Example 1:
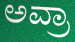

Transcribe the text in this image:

ಅವ್ರಾ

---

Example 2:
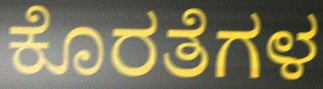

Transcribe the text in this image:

ಕೊರತೆಗಳ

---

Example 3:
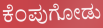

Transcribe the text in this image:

ಕೆಂಪುಗೋಡು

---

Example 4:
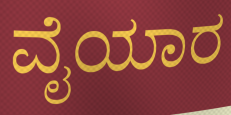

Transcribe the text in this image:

ವೈಯಾರ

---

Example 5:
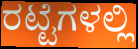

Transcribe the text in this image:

ರಟ್ಟೆಗಳಲ್ಲಿ